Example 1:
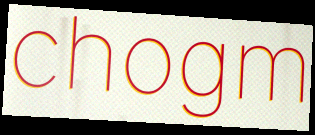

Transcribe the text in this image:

chogm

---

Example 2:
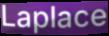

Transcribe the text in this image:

Laplace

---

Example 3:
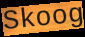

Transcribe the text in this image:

Skoog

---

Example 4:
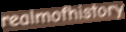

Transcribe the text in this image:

realmofhistory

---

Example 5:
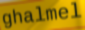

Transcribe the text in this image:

ghalmel